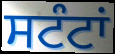
ਸਟੰਟਾਂ